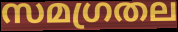
സമഗ്രതല